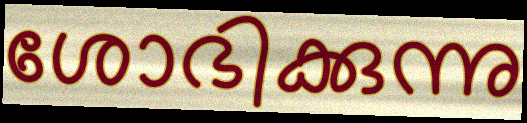
ശോഭിക്കുന്നു